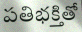
పతిభక్తితో